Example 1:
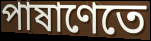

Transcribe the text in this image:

পাষাণেতে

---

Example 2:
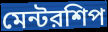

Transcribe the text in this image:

মেন্টরশিপ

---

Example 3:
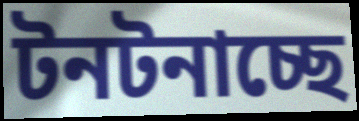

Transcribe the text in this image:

টনটনাচ্ছে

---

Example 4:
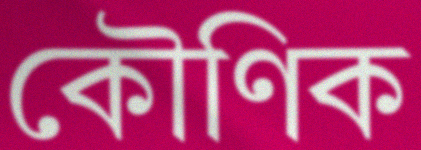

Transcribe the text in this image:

কৌণিক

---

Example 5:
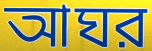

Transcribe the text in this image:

আঘর